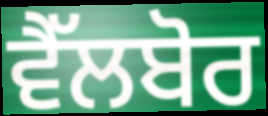
ਵੈੱਲਬੋਰ